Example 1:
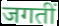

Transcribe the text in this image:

जगतीं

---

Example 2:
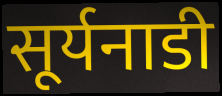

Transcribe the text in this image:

सूर्यनाडी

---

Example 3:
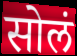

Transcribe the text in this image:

सोलं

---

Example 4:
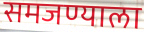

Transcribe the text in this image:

समजण्याला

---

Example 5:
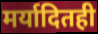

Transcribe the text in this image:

मर्यादितही